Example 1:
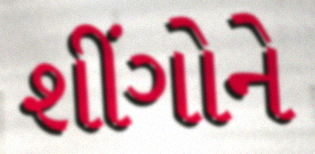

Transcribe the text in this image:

શીંગોને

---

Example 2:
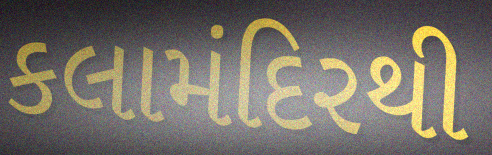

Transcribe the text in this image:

કલામંદિરથી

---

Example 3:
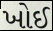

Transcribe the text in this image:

ખોઈ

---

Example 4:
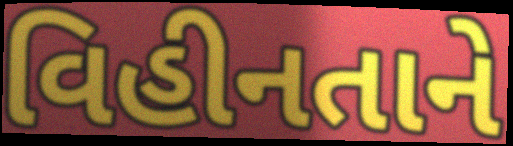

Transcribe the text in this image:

વિહીનતાને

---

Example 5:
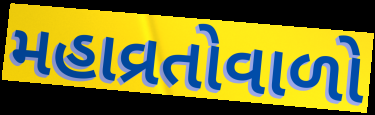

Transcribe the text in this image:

મહાવ્રતોવાળો